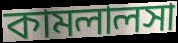
কামলালসা